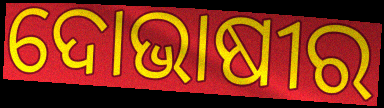
ଦୋଭାଷୀର